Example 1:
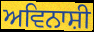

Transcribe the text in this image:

ਅਵਿਨਾਸ਼ੀ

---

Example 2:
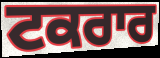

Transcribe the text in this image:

ਟਕਰਾਰ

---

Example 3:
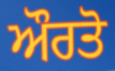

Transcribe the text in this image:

ਔਰਤੋ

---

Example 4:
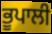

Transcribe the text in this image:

ਭੂਪਾਲੀ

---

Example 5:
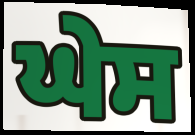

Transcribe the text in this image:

ਘੇਸ